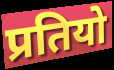
प्रतियो